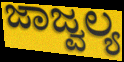
ಜಾಜ್ವಲ್ಯ